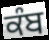
ਕੰਬ